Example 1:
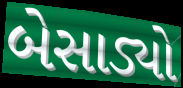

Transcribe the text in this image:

બેસાડ્યો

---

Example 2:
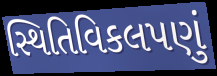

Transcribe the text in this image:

સ્થિતિવિકલપણું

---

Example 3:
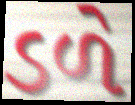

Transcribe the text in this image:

ડળે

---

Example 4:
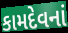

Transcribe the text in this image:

કામદેવનાં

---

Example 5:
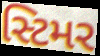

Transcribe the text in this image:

સ્ટિમર